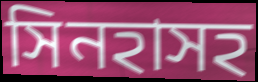
সিনহাসহ